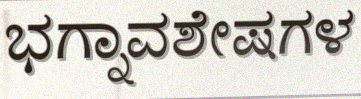
ಭಗ್ನಾವಶೇಷಗಳ